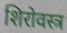
शिरोवस्त्र